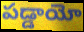
పడ్డాయో